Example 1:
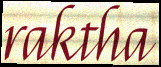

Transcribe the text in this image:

raktha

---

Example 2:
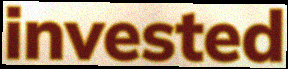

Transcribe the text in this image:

invested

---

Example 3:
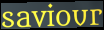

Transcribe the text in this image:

saviour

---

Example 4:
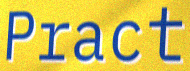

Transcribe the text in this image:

Pract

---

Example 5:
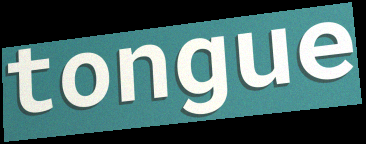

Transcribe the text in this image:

tongue